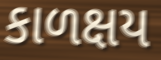
કાળક્ષય